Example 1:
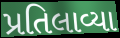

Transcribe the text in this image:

પ્રતિલાવ્યા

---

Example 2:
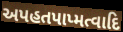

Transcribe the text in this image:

અપહતપાપ્મત્વાદિ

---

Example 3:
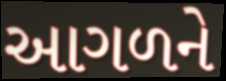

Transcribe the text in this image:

આગળને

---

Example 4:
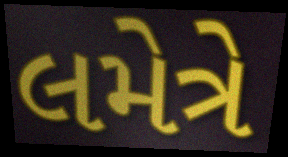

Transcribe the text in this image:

લમેત્રે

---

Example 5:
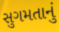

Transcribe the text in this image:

સુગમતાનું